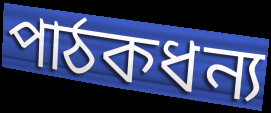
পাঠকধন্য